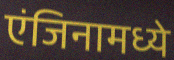
एंजिनामध्ये